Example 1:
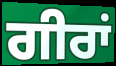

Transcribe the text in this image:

ਗੀਰਾਂ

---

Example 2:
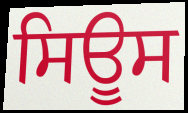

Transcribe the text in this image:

ਸਿਊਸ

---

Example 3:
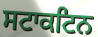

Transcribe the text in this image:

ਸਟਾਕਟਿਨ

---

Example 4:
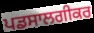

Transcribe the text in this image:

ਪਡਸਾਲਗੀਕਰ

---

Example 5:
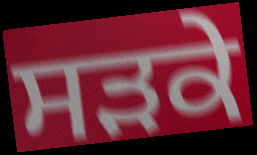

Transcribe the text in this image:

ਸਡ਼ਕੇ